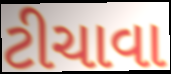
ટીચાવા